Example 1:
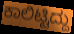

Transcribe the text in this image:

ಕಾಲಿಟ್ಟಿದ್ದು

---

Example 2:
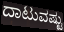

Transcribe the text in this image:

ದಾಟುವಷ್ಟು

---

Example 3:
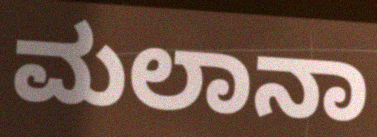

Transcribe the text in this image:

ಮಲಾನಾ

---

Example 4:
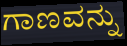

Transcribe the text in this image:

ಗಾಣವನ್ನು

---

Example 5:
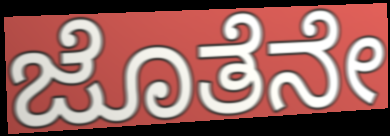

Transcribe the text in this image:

ಜೊತೆನೇ